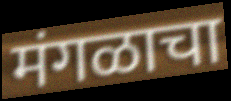
मंगळाचा